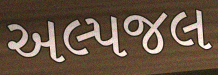
અલ્પજલ